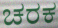
ಚರಕ